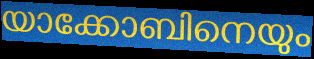
യാക്കോബിനെയും